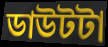
ডাউটটা